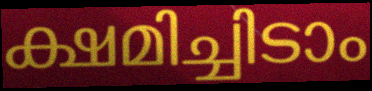
ക്ഷമിച്ചിടാം